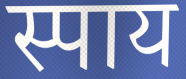
स्पाय